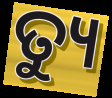
ତ୍ୟୁ